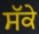
ਸੱਕੇ